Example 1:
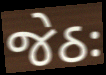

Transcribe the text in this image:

જેઠઃ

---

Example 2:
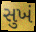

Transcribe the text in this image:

સુખં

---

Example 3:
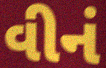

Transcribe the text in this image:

વીનં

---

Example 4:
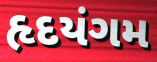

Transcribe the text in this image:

હૃદયંગમ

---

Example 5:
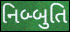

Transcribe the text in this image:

નિબ્બુતિ